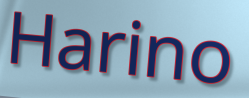
Harino